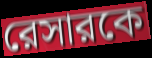
রেসারকে